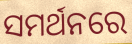
ସମର୍ଥନରେ